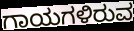
ಗಾಯಗಳಿರುವ